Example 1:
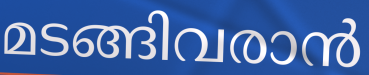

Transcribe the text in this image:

മടങ്ങിവരാൻ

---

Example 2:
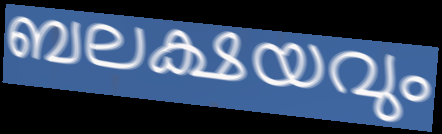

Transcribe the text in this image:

ബലക്ഷയവും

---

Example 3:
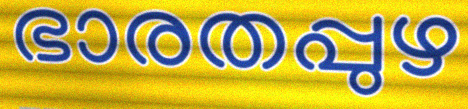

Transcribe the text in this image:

ഭാരതപ്പുഴ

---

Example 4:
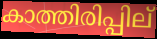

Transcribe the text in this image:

കാത്തിരിപ്പില്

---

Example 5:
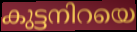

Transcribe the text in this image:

കുട്ടനിറയെ